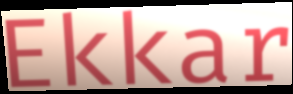
Ekkar